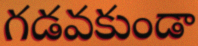
గడవకుండా